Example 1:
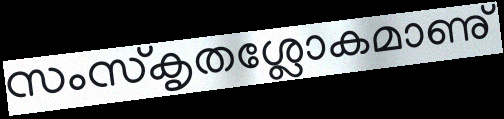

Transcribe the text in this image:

സംസ്കൃതശ്ലോകമാണു്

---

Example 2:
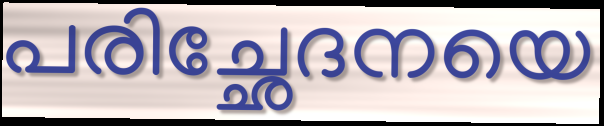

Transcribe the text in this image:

പരിച്ഛേദനയെ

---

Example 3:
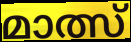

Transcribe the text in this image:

മാത്സ്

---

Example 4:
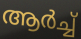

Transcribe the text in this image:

ആർച്ച്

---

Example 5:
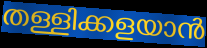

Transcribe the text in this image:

തള്ളിക്കളയാൻ